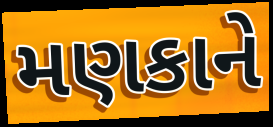
મણકાને